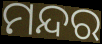
ମନ୍ଦର